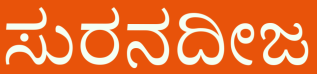
ಸುರನದೀಜ